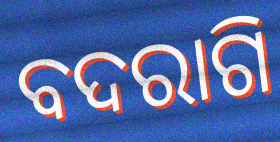
ବଦରାଗି